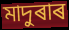
মাদুৰাৰ